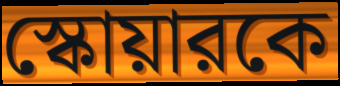
স্কোয়ারকে